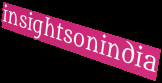
insightsonindia